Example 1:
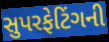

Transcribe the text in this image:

સુપરફેટિંગની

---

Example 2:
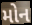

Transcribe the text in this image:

મોન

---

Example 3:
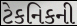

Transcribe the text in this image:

ટેકનિકની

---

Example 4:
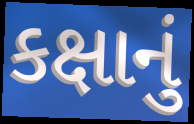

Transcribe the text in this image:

કક્ષાનું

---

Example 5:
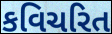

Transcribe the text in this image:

કવિચરિત